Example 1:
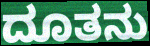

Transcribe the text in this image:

ದೂತನು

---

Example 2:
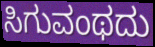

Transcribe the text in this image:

ಸಿಗುವಂಥದು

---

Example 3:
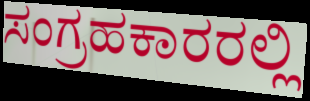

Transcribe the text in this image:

ಸಂಗ್ರಹಕಾರರಲ್ಲಿ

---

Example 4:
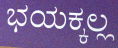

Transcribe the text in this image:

ಭಯಕ್ಕಲ್ಲ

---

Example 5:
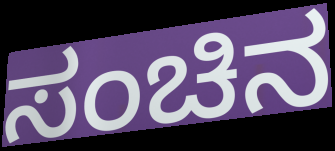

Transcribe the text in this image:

ಸಂಚಿನ